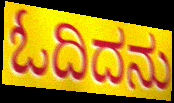
ಓದಿದನು